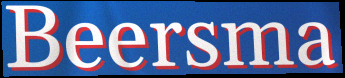
Beersma